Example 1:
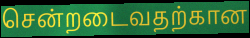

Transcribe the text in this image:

சென்றடைவதற்கான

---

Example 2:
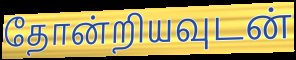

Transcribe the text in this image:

தோன்றியவுடன்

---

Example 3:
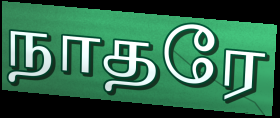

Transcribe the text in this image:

நாதரே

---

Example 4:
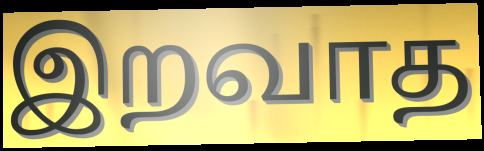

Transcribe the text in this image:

இறவாத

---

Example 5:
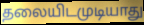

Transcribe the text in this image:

தலையிடமுடியாது